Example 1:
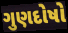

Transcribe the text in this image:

ગુણદોષો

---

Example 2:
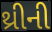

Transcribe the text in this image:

થ્રીની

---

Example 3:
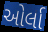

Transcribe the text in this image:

ઓર્લા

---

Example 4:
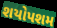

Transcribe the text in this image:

શયોપશમ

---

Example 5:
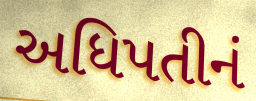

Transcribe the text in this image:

અધિપતીનં